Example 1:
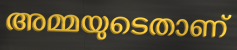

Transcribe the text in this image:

അമ്മയുടെതാണ്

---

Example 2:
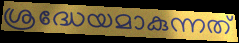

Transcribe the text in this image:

ശ്രദ്ധേയമാകുന്നത്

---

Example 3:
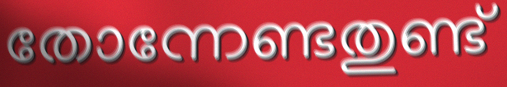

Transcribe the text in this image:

തോന്നേണ്ടതുണ്ട്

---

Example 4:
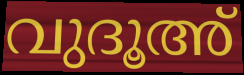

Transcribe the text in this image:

വുദൂഅ്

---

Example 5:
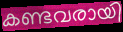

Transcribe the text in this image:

കണ്ടവരായി